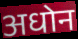
अधोन